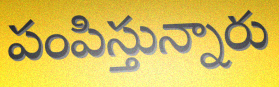
పంపిస్తున్నారు